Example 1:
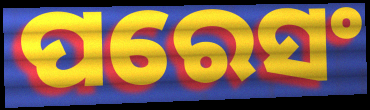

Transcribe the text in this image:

ପରେସଂ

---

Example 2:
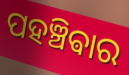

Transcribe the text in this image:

ପହଞ୍ଚିଵାର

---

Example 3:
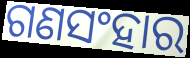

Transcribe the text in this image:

ଗଣସଂହାର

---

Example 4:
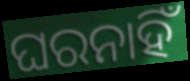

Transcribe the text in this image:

ଘରନାହିଁ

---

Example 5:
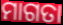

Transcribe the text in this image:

ମାଗତା